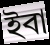
ইবা